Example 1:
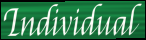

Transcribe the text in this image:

Individual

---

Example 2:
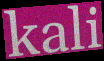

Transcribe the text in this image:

kali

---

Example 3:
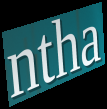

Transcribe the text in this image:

ntha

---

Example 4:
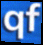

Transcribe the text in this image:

qf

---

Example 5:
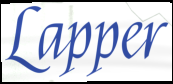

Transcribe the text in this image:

Lapper